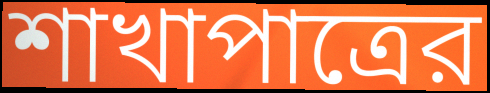
শাখাপাত্রের